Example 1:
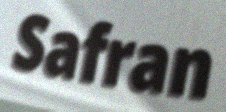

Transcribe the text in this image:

Safran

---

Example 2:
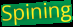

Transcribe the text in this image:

Spining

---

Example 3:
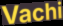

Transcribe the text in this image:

Vachi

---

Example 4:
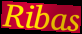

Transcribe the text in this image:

Ribas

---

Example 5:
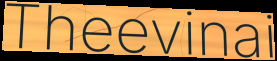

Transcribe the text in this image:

Theevinai